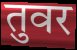
तुवर